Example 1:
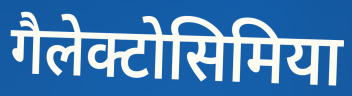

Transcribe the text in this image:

गैलेक्टोसिमिया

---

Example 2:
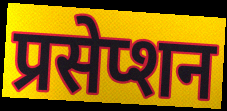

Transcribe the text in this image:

प्रसेप्शन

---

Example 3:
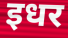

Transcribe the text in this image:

इधर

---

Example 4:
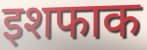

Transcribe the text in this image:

इशफाक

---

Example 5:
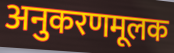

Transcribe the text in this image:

अनुकरणमूलक